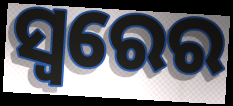
ସ୍ୱରେର